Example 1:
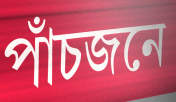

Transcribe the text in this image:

পাঁচজনে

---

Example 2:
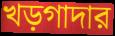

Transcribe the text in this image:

খড়গাদার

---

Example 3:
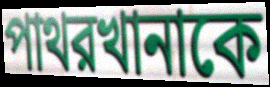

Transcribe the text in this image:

পাথরখানাকে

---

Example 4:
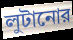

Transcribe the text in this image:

লুটানোর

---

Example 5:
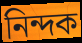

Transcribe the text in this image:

নিন্দক